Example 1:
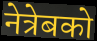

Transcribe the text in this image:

नेत्रेबको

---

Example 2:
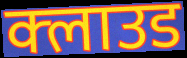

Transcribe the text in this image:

क्‍लाउड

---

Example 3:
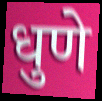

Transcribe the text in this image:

धुणे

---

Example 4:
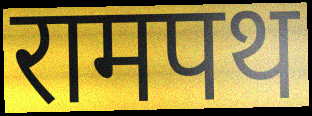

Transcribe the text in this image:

रामपथ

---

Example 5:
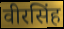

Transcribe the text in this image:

वीरसिंह